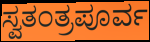
ಸ್ವತಂತ್ರಪೂರ್ವ